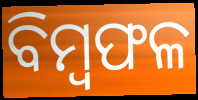
ବିମ୍ୱଫଳ